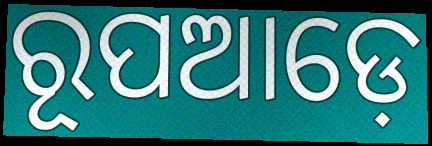
ରୂପଆଡ଼େ